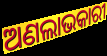
ଅଣଲାଭକାରୀ